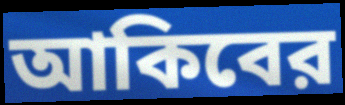
আকিবের